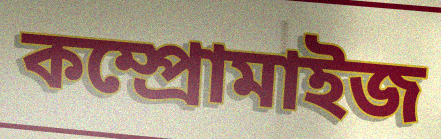
কম্প্রোমাইজ